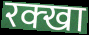
रक्‍खा